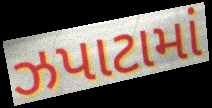
ઝપાટામાં